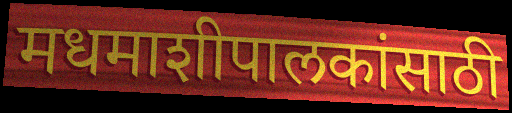
मधमाशीपालकांसाठी